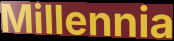
Millennia